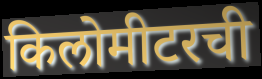
किलोमीटरची